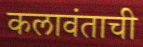
कलावंताची